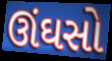
ઊંઘસો